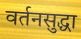
वर्तनसुद्धा